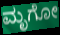
ಮೃಗೋ